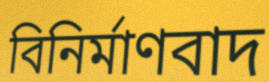
বিনিৰ্মাণবাদ